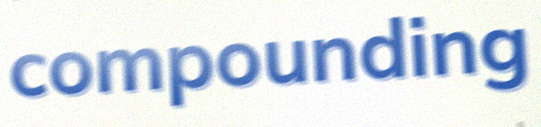
compounding